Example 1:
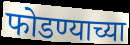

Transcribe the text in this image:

फोडण्याच्या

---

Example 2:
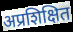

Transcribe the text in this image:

अप्रशिक्षित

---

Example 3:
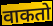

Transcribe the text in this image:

वाकतो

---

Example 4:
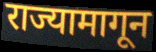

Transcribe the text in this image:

राज्यामागून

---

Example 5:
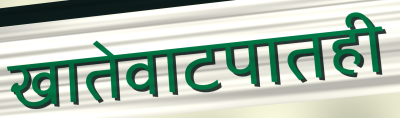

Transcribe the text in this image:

खातेवाटपातही